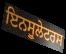
ਇਨਸੂਲੇਟਰਸ